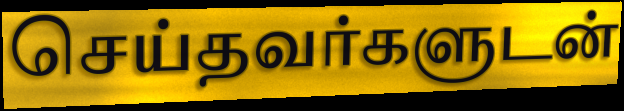
செய்தவர்களுடன்